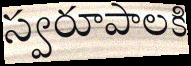
స్వరూపాలకి